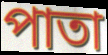
পাতা